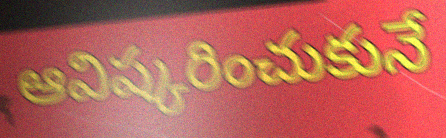
ఆవిష్కరించుకునే